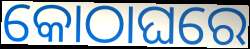
କୋଠାଘରେ